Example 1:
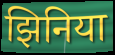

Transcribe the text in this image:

झिनिया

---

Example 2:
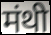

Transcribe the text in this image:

मंथी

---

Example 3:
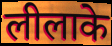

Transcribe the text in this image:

लीलाके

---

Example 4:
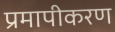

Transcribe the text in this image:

प्रमापीकरण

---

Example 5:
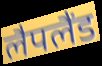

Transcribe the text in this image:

लैपलैंड